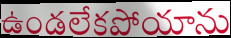
ఉండలేకపోయాను